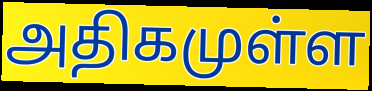
அதிகமுள்ள